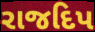
રાજદિપ